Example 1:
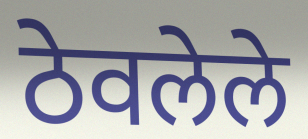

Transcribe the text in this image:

ठेवलेले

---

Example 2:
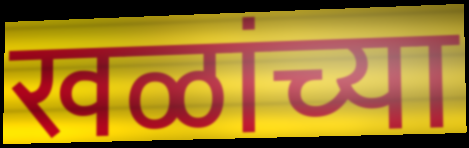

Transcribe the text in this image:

खळांच्या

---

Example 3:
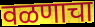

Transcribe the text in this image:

वळणाचा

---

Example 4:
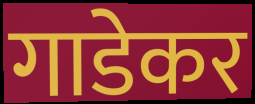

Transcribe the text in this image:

गाडेकर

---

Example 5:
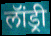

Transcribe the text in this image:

लॉंड्री